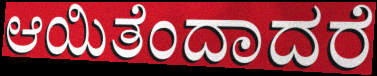
ಆಯಿತೆಂದಾದರೆ